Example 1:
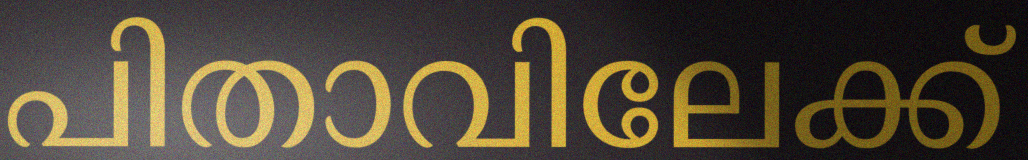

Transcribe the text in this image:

പിതാവിലേക്ക്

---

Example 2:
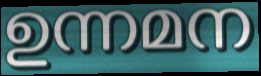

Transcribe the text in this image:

ഉന്നമന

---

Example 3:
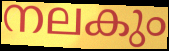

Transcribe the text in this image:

നലകും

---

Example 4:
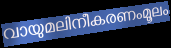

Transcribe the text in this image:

വായുമലിനീകരണംമൂലം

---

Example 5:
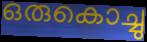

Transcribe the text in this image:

ഒരുകൊച്ചു